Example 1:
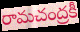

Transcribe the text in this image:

రామచంద్రకీ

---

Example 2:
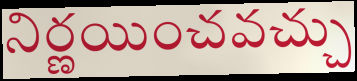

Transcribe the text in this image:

నిర్ణయించవచ్చు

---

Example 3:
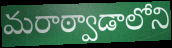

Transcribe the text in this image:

మరాఠ్వాడాలోని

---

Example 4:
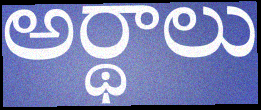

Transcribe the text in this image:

అర్థాలు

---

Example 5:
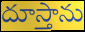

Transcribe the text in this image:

దూస్తాను